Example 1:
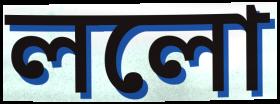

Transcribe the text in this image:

ললো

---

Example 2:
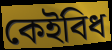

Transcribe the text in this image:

কেইবিধ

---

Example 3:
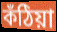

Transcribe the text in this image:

কঁঠিয়া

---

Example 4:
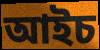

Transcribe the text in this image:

আইচ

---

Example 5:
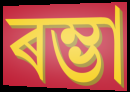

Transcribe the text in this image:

ৰম্ভা